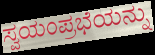
ಸ್ವಯಂಪ್ರಭೆಯನ್ನು